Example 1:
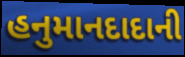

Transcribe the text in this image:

હનુમાનદાદાની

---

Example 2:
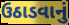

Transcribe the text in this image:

ઉઠાડવાનું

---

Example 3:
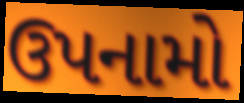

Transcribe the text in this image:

ઉપનામો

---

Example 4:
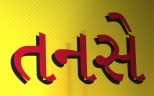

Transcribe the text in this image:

તનસે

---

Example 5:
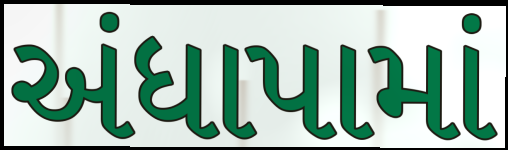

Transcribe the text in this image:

અંધાપામાં